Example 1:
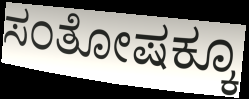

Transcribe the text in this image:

ಸಂತೋಷಕ್ಕೂ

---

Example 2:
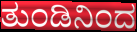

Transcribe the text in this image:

ತುಂಡಿನಿಂದ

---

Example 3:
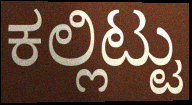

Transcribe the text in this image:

ಕಲ್ಲಿಟ್ಟು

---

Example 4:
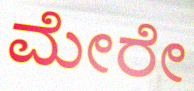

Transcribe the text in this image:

ಮೇರೇ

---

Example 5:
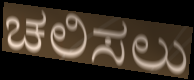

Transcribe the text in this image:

ಚಲಿಸಲು